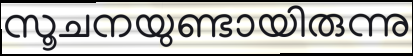
സൂചനയുണ്ടായിരുന്നു